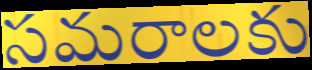
సమరాలకు